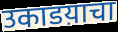
उकाडय़ाचा